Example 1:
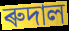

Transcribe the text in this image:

ৰুদাল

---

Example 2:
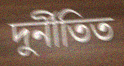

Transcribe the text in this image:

দুৰ্নীতিত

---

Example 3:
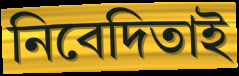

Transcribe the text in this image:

নিবেদিতাই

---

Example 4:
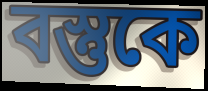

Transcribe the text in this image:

বস্তুকে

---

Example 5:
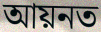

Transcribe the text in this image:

আয়নত